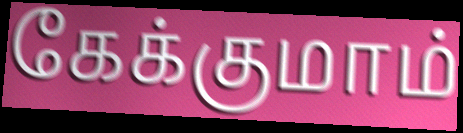
கேக்குமாம்